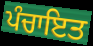
ਪੰਚਾਇਤ